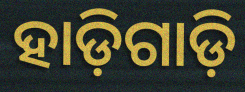
ହାଡ଼ିଗାଡ଼ି